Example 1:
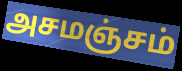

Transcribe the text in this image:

அசமஞ்சம்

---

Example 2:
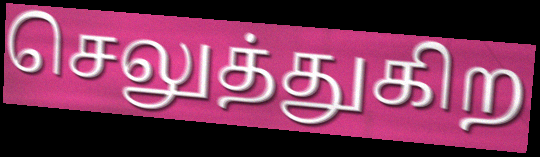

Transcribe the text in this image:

செலுத்துகிற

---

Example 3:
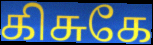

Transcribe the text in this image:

கிசுகே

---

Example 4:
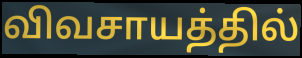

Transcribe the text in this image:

விவசாயத்தில்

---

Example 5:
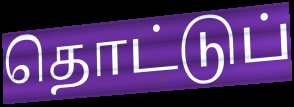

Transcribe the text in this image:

தொட்டுப்